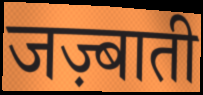
जज़्बाती